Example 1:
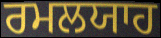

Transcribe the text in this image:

ਰਮਲਯਾਹ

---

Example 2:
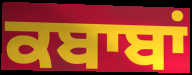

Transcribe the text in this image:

ਕਬਾਬਾਂ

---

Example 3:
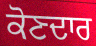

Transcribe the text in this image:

ਕੋਣਦਾਰ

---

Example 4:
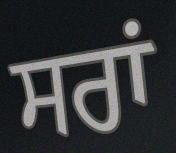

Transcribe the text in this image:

ਸਰਾਂ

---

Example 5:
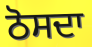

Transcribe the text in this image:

ਠੋਸਦਾ